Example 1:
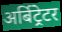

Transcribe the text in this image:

अर्बिट्रेटर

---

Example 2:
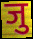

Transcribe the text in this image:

जु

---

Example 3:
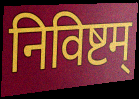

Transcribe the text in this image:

निविष्टम्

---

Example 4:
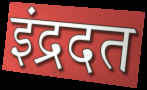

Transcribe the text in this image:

इंद्रदत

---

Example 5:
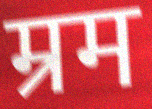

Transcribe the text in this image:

म्रम